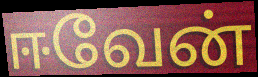
ஈவேன்